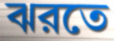
ঝরতে